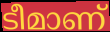
ടീമാണ്